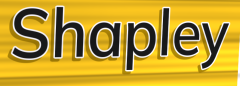
Shapley